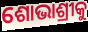
ଶୋଭାଶ୍ରୀକୁ